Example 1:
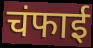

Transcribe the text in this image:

चंफाई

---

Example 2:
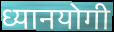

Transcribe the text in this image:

ध्यानयोगी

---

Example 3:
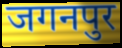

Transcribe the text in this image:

जगनपुर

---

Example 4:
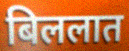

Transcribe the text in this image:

बिललात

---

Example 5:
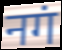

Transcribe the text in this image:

नगं